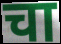
चा